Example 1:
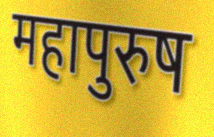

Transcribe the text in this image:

महापुरुष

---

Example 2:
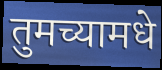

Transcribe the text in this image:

तुमच्यामधे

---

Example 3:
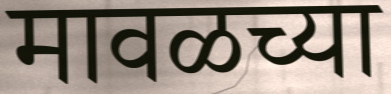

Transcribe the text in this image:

मावळच्या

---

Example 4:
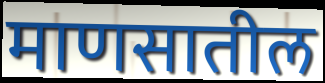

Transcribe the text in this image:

माणसातील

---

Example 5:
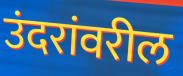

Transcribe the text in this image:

उंदरांवरील